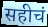
सहीचं